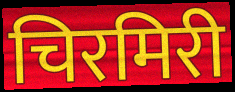
चिरमिरी